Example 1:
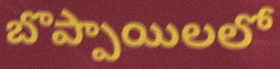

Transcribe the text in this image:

బొప్పాయిలలో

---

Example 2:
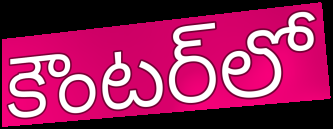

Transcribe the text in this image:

కౌంటర్‌లో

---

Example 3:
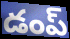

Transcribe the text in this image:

డంప్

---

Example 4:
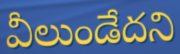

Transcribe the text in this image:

వీలుండేదని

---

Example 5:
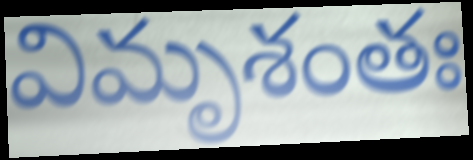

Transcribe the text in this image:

విమృశంతః